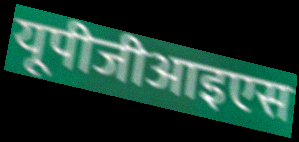
यूपीजीआइएस